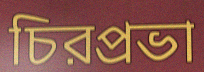
চিরপ্রভা